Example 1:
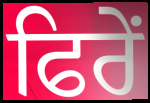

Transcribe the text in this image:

ਫਿਰੇਂ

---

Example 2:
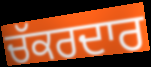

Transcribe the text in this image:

ਚੱਕਰਦਾਰ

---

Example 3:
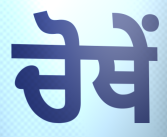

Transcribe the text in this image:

ਚੋਥੇਂ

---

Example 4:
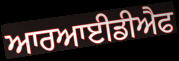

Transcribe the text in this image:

ਆਰਆਈਡੀਐਫ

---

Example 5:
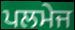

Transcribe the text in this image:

ਪਲਮੇਜ